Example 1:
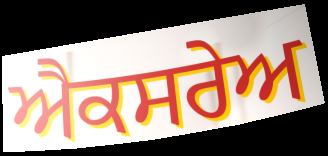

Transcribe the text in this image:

ਐਕਸਰੇਅ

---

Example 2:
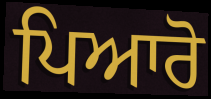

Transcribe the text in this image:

ਪਿਆਰੋ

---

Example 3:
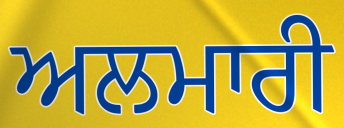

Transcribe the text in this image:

ਅਲਮਾਰੀ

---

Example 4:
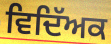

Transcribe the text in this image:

ਵਿਦਿੱਅਕ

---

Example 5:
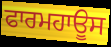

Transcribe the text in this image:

ਫਾਰਮਹਾਊਸ